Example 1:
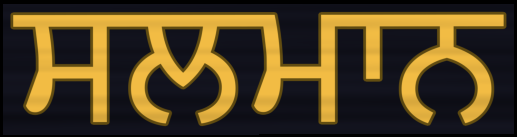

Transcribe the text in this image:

ਸਲਮਾਨ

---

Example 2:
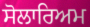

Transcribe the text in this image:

ਸੋਲਾਰਿਅਮ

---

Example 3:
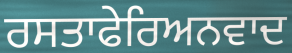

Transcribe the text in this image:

ਰਸਤਾਫੇਰਿਅਨਵਾਦ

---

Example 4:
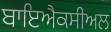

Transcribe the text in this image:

ਬਾਇਐਕਸੀਅਲ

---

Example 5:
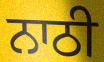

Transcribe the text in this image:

ਨਾਠੀ